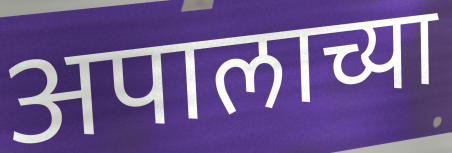
अपालाच्या